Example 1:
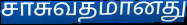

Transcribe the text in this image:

சாசுவதமானது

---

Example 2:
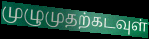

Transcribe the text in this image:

முழுமுதற்கடவுள்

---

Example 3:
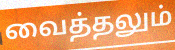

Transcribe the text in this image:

வைத்தலும்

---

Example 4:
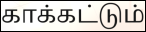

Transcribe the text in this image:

காக்கட்டும்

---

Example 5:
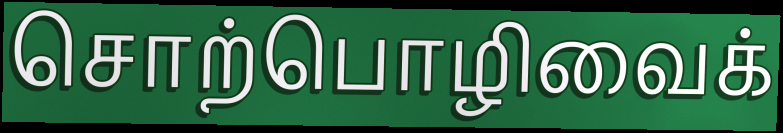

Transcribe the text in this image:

சொற்பொழிவைக்